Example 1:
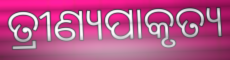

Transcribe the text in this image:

ତ୍ରୀଣ୍ୟପାକୃତ୍ୟ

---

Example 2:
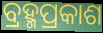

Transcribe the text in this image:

ବ୍ରହ୍ମପ୍ରକାଶ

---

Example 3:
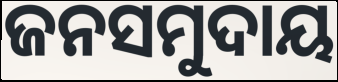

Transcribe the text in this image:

ଜନସମୁଦାୟ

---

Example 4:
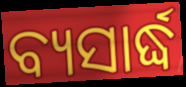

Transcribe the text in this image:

ବ୍ୟସାର୍ଦ୍ଧ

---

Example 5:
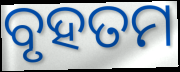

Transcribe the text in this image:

ବୃହତମ